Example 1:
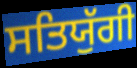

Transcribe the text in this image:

ਸਤਿਯੁੱਗੀ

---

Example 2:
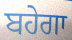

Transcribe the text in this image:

ਬਹੇਗਾ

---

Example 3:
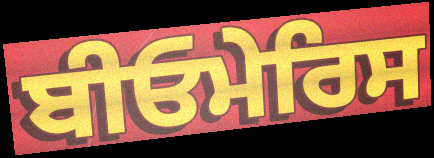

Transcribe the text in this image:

ਬੀਓਮੇਰਿਸ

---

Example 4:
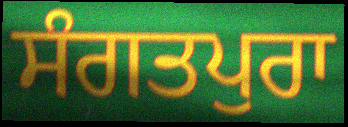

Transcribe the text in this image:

ਸੰਗਤਪੁਰਾ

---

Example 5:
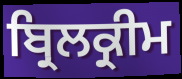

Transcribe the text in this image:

ਬ੍ਰਿਲਕ੍ਰੀਮ